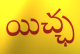
యిచ్ఛ